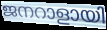
ജനറാളായി